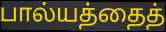
பால்யத்தைத்